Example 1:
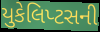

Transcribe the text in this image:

યુકેલિપ્ટસની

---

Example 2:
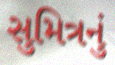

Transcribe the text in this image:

સુમિત્રનું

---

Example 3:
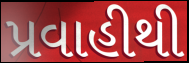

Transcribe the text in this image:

પ્રવાહીથી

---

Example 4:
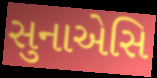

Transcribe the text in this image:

સુનાએસિ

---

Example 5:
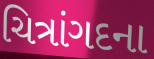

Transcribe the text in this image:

ચિત્રાંગદના